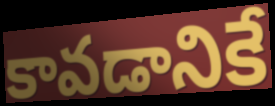
కావడానికే